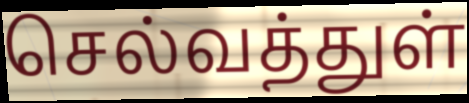
செல்வத்துள்